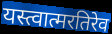
यस्त्वात्मरतिरेव